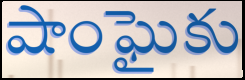
షాంఘైకు